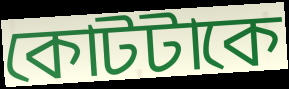
কোটটাকে